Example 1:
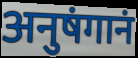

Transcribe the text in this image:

अनुषंगानं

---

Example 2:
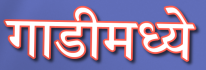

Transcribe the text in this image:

गाडीमध्ये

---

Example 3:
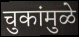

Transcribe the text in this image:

चुकांमुळे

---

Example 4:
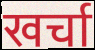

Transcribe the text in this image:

खर्चा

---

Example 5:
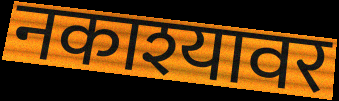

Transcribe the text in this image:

नकाश्यावर